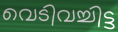
വെടിവച്ചിട്ട